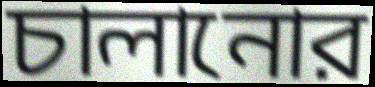
চালানোর